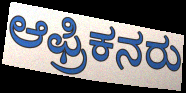
ಆಫ್ರಿಕನರು